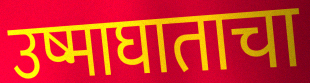
उष्माघाताचा